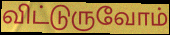
விட்டுருவோம்